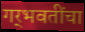
गर्भवतींचा